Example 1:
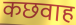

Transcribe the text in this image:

कछवाह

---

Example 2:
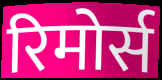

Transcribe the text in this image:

रिमोर्स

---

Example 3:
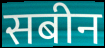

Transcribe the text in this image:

सबीन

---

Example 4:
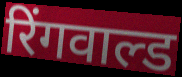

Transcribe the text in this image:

रिंगवाल्ड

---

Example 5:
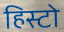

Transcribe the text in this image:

हिस्टो